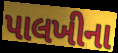
પાલખીના